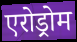
एरोड्रोम